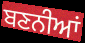
ਬਣਨੀਆਂ